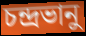
চন্দ্রভানু